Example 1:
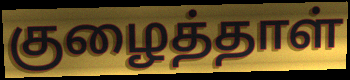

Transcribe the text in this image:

குழைத்தாள்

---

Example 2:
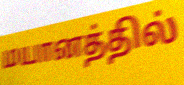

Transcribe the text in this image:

மயானத்தில்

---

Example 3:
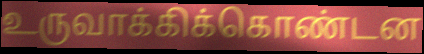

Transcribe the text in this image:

உருவாக்கிக்கொண்டன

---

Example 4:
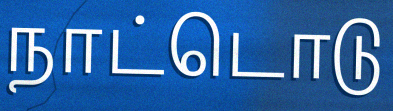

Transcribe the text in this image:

நாட்டொடு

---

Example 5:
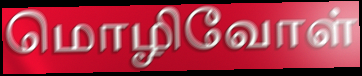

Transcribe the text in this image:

மொழிவோள்